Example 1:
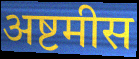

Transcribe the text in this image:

अष्टमीस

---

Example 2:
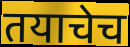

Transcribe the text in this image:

तयाचेच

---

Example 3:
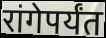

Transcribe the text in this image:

रांगेपर्यंत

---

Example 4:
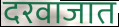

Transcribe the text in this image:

दरवाजात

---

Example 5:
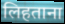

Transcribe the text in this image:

लिहताना